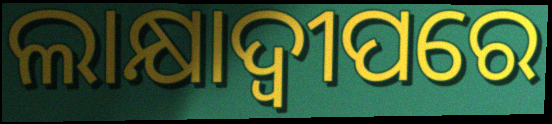
ଲାକ୍ଷାଦ୍ୱୀପରେ